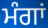
ਮੰਗਾਂ